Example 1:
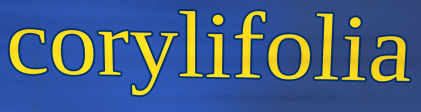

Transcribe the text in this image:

corylifolia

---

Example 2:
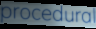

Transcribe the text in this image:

procedural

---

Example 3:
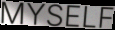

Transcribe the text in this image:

MYSELF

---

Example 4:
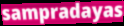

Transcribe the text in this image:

sampradayas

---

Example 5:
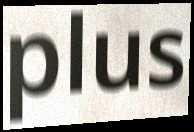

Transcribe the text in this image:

plus